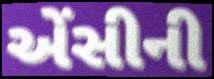
એંસીની